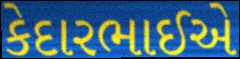
કેદારભાઈએ